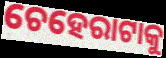
ଚେହେରାଟାକୁ